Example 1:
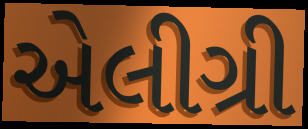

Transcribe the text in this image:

એલીગ્રી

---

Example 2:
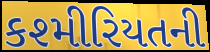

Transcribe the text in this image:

કશ્મીરિયતની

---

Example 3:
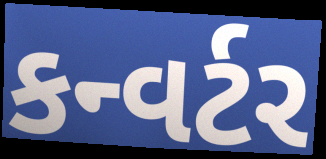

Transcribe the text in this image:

કન્વર્ટર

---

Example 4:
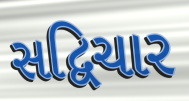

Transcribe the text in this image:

સદ્વિચાર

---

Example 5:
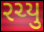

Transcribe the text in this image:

રચ્યુ